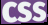
css